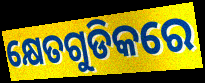
କ୍ଷେତଗୁଡିକରେ